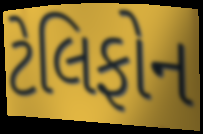
ટેલિફોન